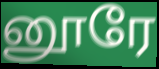
னூரே